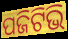
ପଜିଟିଭି